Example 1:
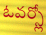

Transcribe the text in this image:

ఓవర్స్లో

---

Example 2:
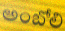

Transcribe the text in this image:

అంబోలి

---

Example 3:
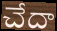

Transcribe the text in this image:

చేదా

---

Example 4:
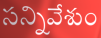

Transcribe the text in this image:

సన్నివేశుం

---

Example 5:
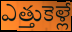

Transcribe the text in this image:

ఎత్తుకెళ్లే